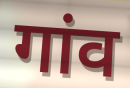
गांव